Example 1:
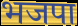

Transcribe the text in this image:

भजपा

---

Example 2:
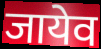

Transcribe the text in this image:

जायेव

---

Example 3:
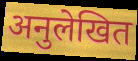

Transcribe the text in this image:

अनुलेखित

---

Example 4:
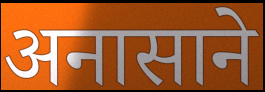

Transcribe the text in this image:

अनासाने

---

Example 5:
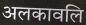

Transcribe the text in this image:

अलकावलि